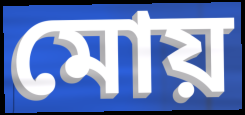
মোয়